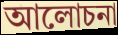
আলোচনা